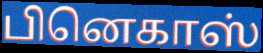
பினெகாஸ்